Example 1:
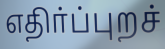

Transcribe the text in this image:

எதிர்ப்புறச்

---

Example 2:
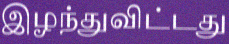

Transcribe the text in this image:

இழந்துவிட்டது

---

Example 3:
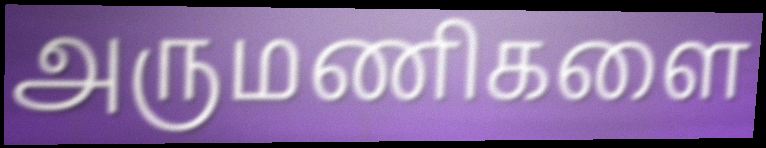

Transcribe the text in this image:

அருமணிகளை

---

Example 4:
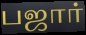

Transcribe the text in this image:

பஜார்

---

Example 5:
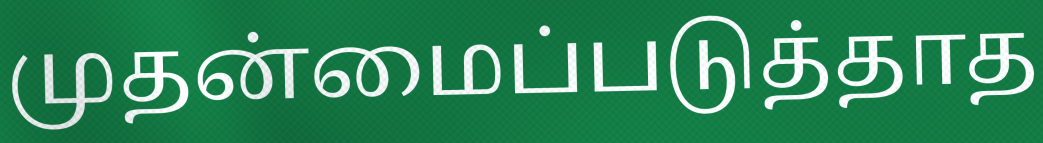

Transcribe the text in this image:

முதன்மைப்படுத்தாத